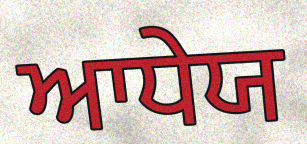
ਆਧੇਯ